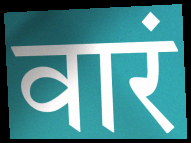
वारं